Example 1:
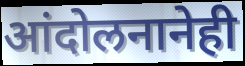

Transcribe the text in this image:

आंदोलनानेही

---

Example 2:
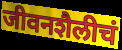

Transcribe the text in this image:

जीवनशैलीचं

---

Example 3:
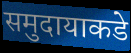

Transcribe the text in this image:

समुदायाकडे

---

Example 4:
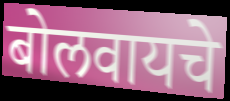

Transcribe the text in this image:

बोलवायचे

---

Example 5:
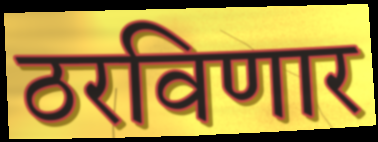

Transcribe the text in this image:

ठरविणार